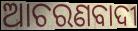
ଆଚରଣବାଦୀ